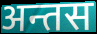
अन्तस